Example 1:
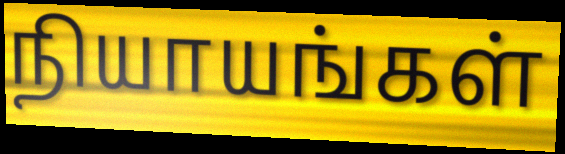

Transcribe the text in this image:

நியாயங்கள்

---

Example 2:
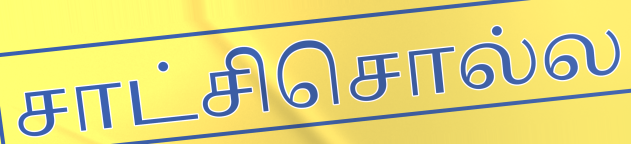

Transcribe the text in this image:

சாட்சிசொல்ல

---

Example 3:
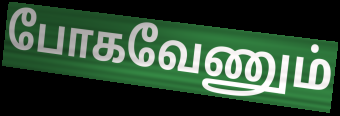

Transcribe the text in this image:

போகவேணும்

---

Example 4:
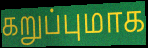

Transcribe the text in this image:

கறுப்புமாக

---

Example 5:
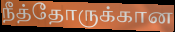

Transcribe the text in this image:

நீத்தோருக்கான